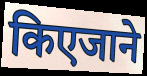
किएजाने